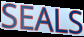
SEALS